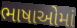
ભાષાઓમાં